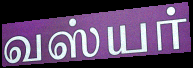
வஸ்யர்